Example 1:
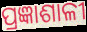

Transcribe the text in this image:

ପ୍ରଜ୍ଞାଶାଳୀ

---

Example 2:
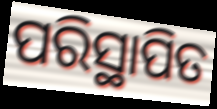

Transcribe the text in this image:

ପରିସ୍ଥାପିତ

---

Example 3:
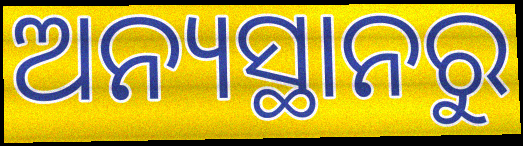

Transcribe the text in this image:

ଅନ୍ୟସ୍ଥାନରୁ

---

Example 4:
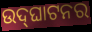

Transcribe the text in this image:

ଉଦ୍‍ଘାଟନର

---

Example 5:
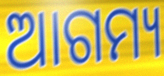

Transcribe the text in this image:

ଆଗମ୍ୟ